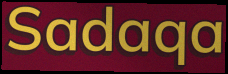
Sadaqa